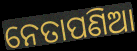
ନେତାପଣିଆ